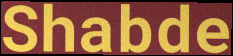
Shabde